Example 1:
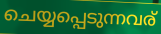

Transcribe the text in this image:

ചെയ്യപ്പെടുന്നവര്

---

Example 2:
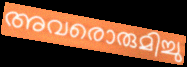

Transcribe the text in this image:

അവരൊരുമിച്ചു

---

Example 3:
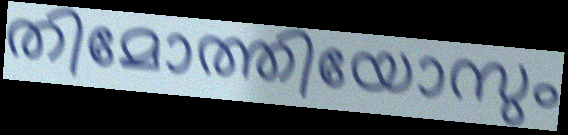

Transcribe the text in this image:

തിമോത്തിയോസും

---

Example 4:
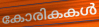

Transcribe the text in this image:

കോരികകൾ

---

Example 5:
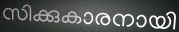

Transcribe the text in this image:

സിക്കുകാരനായി